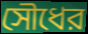
সৌধের